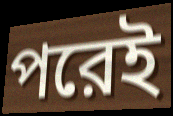
পরেই